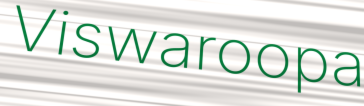
Viswaroopa